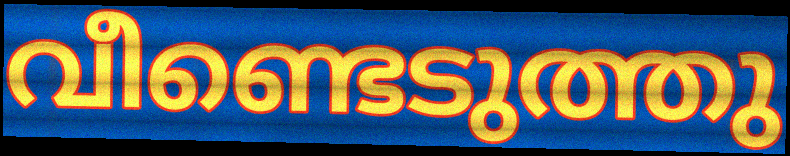
വീണ്ടെടുത്തു